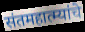
संतमहात्म्यांचे